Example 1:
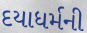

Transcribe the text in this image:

દયાધર્મની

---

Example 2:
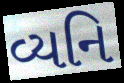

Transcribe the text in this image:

વ્યનિ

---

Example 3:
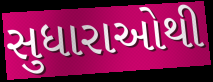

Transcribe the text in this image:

સુધારાઓથી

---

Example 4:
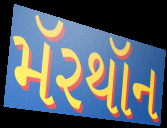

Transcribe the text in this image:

મૅરથૉન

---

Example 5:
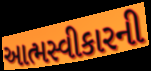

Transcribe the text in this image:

આત્મસ્વીકારની